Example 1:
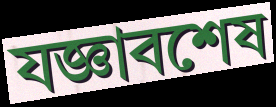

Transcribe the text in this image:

যজ্ঞাবশেষ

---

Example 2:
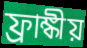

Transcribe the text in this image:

ফ্রাঙ্কীয়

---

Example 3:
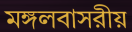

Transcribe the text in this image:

মঙ্গলবাসরীয়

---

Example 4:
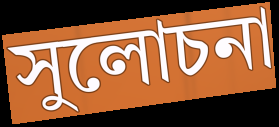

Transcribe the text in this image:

সুলোচনা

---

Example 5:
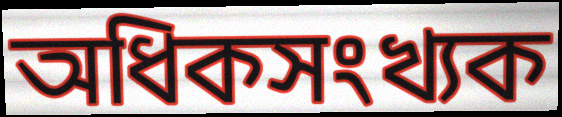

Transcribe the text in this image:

অধিকসংখ্যক